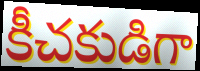
కీచకుడిగా